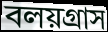
বলয়গ্রাস